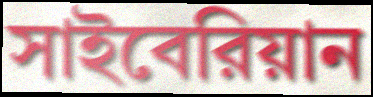
সাইবেরিয়ান